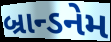
બ્રાન્ડનેમ